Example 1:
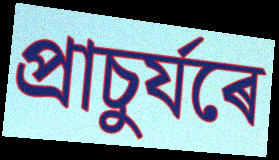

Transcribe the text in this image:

প্ৰাচুৰ্যৰে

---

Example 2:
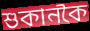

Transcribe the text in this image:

শুকানকৈ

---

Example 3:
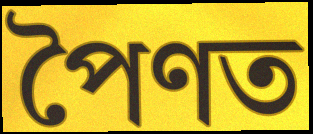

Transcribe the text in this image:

পৈণত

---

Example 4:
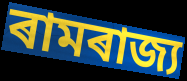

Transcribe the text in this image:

ৰামৰাজ্য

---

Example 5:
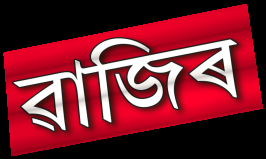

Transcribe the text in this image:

ৱাজিৰ